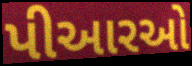
પીઆરઓ